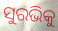
ସୁରଭିକୁ